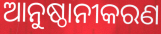
ଆନୁଷ୍ଠାନୀକରଣ